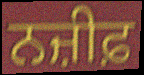
ਨਜ਼ੀਫ਼